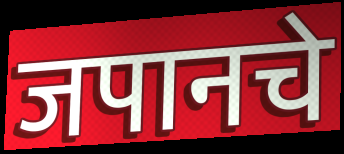
जपानचे